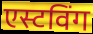
एस्टविंग